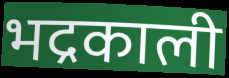
भद्रकाली